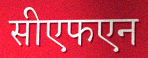
सीएफएन